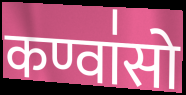
कण्वा॑सो